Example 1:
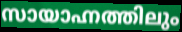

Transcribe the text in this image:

സായാഹ്നത്തിലും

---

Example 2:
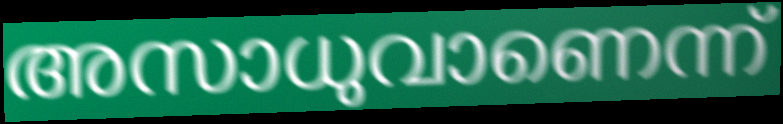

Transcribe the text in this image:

അസാധുവാണെന്ന്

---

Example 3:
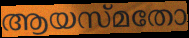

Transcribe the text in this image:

ആയസ്മതോ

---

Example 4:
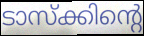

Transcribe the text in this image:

ടാസ്ക്കിന്റെ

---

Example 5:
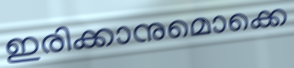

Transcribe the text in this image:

ഇരിക്കാനുമൊക്കെ